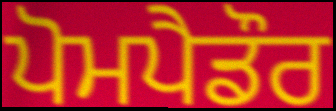
ਪੋਮਪੈਡੌਰ